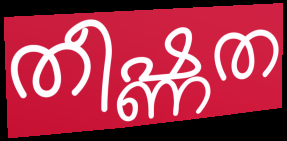
തീഷ്ണത